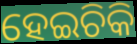
ହେଇଚିକି